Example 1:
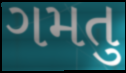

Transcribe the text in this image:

ગમતુ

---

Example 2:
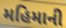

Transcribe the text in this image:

મહિમાની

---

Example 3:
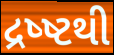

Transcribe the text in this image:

દ્રષ્ષ્ટથી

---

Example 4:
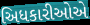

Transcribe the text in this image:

અિધકારીઓએ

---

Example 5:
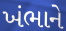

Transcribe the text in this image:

ખંભાને